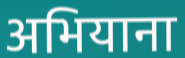
अभियाना